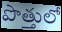
పొత్తులో